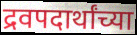
द्रवपदार्थांच्या